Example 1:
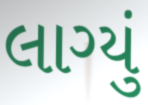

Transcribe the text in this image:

લાગ્યું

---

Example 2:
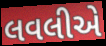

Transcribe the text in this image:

લવલીએ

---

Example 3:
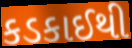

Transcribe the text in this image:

કડકાઈથી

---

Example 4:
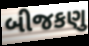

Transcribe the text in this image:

બીજકણુ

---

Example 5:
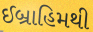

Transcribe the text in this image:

ઈબ્રાહિમથી